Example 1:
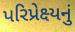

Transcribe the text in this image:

પરિપ્રેક્ષ્યનું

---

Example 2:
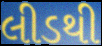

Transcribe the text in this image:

લીડથી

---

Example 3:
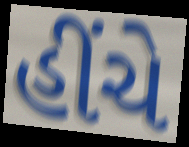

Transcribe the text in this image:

હીંચે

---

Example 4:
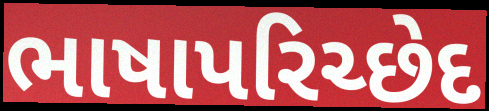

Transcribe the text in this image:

ભાષાપરિચ્છેદ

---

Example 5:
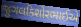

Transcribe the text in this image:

જુગલકિશોરભાઈએ